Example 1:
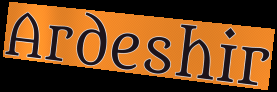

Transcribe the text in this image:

Ardeshir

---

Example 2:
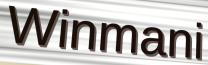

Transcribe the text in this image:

Winmani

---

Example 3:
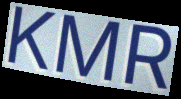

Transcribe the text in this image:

KMR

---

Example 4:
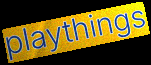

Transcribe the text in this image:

playthings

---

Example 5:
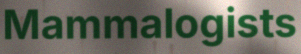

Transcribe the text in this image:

Mammalogists